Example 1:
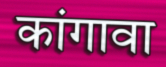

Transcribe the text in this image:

कांगावा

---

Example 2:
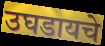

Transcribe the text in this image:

उघडायचे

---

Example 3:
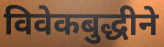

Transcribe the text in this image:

विवेकबुद्धीने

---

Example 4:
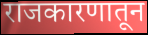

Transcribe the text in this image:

राजकारणातून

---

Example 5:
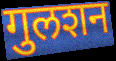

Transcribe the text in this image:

गुलशन